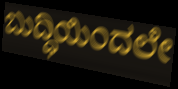
ಬುದ್ಧಿಯಿಂದಲೇ